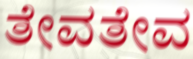
ತೇವತೇವ